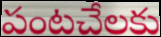
పంటచేలకు